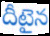
దీటైన